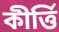
কীৰ্ত্তি